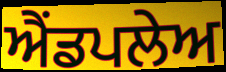
ਐਂਡਪਲੇਅ